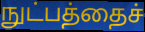
நுட்பத்தைச்